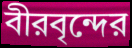
বীরবৃন্দের